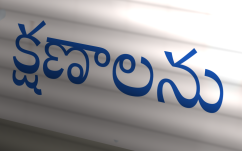
క్షణాలను